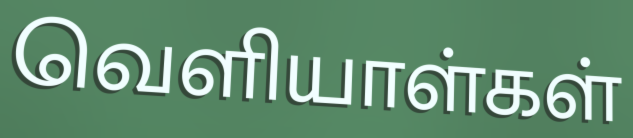
வெளியாள்கள்